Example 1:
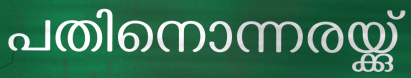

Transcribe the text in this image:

പതിനൊന്നരയ്ക്കു്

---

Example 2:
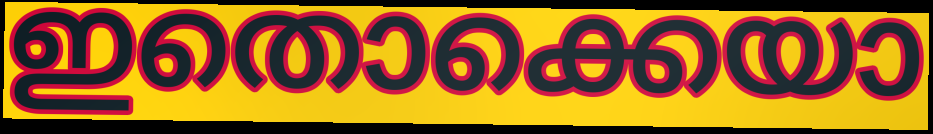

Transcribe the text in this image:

ഇതൊക്കെയാ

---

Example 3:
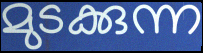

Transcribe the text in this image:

മുടക്കുന്ന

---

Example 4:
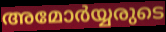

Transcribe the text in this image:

അമോർയ്യരുടെ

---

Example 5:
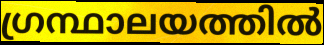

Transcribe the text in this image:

ഗ്രന്ഥാലയത്തിൽ